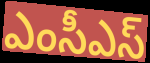
ఎంసీఎస్